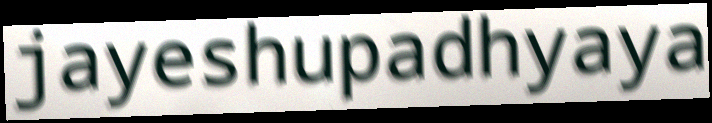
jayeshupadhyaya